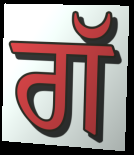
ਗੱ